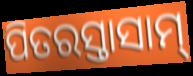
ପିତରସ୍ତାସାମ୍